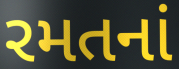
રમતનાં